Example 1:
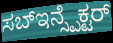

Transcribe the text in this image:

ಸಬ್ಇನ್ಸ್ಪೆಕ್ಟರ್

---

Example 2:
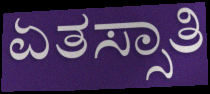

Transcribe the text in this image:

ಏತಸ್ಸಾತಿ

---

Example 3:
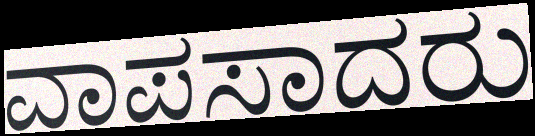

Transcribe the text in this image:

ವಾಪಸಾದರು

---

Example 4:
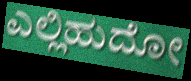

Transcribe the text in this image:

ಎಲ್ಲಿಹುದೋ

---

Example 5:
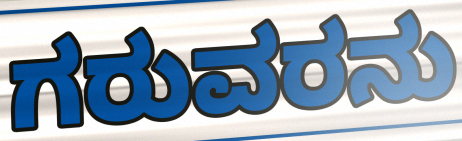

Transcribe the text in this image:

ಗರುವರನು